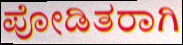
ಪೋಡಿತರಾಗಿ